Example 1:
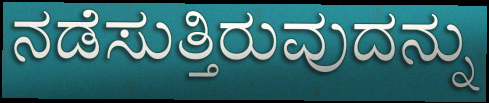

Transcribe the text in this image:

ನಡೆಸುತ್ತಿರುವುದನ್ನು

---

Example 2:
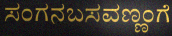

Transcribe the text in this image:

ಸಂಗನಬಸವಣ್ಣಂಗೆ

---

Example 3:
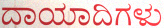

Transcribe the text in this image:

ದಾಯಾದಿಗಳು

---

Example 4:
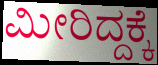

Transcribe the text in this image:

ಮೀರಿದ್ದಕ್ಕೆ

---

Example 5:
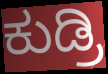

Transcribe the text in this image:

ಕುಡ್ರಿ